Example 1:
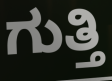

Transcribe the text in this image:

ಗುತ್ತಿ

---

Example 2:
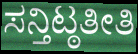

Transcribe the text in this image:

ಸನ್ತಿಟ್ಠತೀತಿ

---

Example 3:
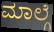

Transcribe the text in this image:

ಮಾಲ್ಗೆ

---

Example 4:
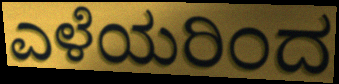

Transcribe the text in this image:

ಎಳೆಯರಿಂದ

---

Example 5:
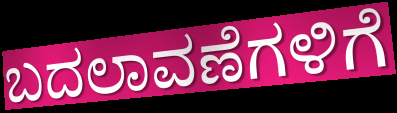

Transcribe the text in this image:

ಬದಲಾವಣೆಗಳಿಗೆ